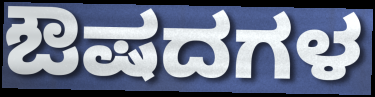
ಔಷದಗಳ